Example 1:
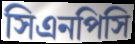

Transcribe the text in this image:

সিএনপিসি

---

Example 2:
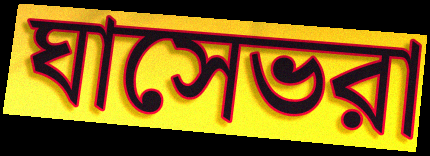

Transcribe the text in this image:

ঘাসেভরা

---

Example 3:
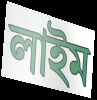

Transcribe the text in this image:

লাইম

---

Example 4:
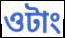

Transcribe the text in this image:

ওটাং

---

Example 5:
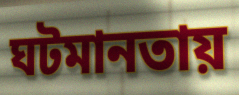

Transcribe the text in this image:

ঘটমানতায়